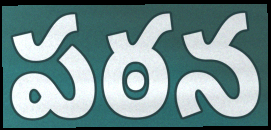
పఠన